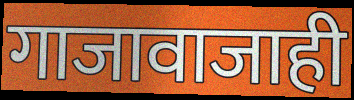
गाजावाजाही